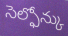
సెల్ఫోన్కు